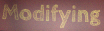
Modifying